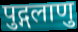
पुद्गलाणु